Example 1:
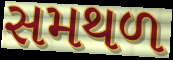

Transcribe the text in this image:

સમથળ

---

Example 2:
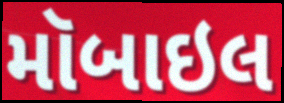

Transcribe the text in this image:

મૉબાઇલ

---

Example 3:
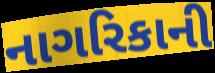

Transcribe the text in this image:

નાગરિકાની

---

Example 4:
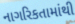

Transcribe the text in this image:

નાગરિકતામાંથી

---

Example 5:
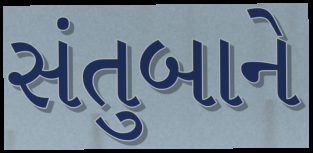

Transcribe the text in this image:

સંતુબાને